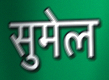
सुमेल